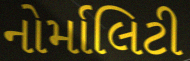
નોર્માલિટી